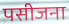
पसीजना